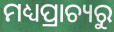
ମଧ୍ୟପ୍ରାଚ୍ୟରୁ